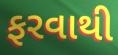
ફરવાથી